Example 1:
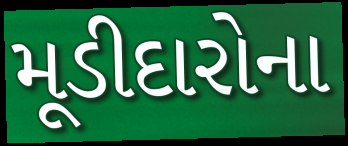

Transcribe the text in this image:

મૂડીદારોના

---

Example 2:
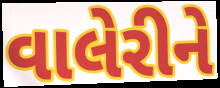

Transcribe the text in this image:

વાલેરીને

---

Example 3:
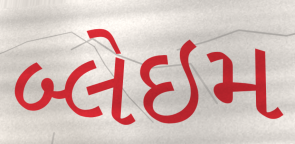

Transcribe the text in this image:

બ્લેઇમ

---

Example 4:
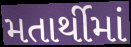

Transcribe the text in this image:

મતાર્થીમાં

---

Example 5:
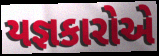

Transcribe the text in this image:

યજ્ઞકારોએ